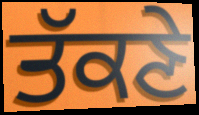
ਤੱਕਣੇ